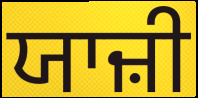
ਯਾਜ਼ੀ